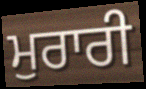
ਮੁਰਾਰੀ